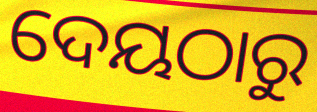
ଦେୟଠାରୁ